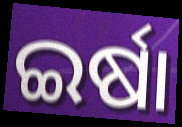
ଇର୍ଷା